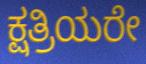
ಕ್ಷತ್ರಿಯರೇ